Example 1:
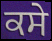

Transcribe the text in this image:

ਕਸੇ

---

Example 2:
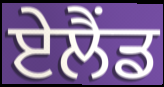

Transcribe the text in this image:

ਏਲੈਂਡ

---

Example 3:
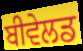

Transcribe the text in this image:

ਬੀਵੇਲਡ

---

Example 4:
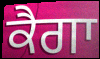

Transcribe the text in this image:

ਕੈਗਾ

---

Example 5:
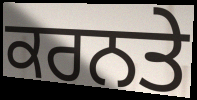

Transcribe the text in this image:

ਕਰਨਤੇ